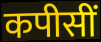
कपीसीं